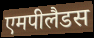
एमपीलैडस